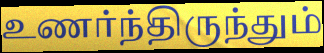
உணர்ந்திருந்தும்